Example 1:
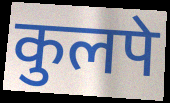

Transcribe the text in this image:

कुलपे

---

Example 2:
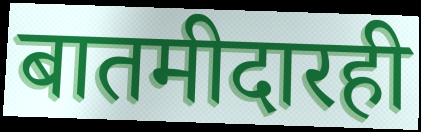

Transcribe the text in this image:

बातमीदारही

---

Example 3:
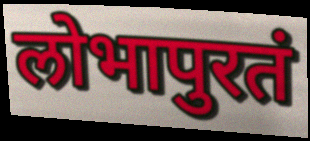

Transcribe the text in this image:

लोभापुरतं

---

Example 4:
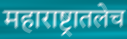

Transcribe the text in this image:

महाराष्ट्रातलेच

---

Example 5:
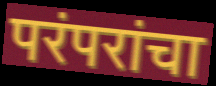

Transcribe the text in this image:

परंपरांचा